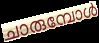
ചാരുമ്പോൾ